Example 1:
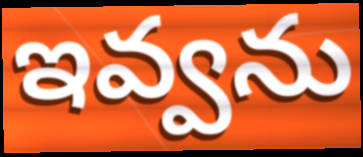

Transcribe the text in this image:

ఇవ్వను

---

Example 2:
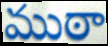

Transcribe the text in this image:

ముఠా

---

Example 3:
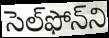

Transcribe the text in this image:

సెల్‌ఫోన్‌ని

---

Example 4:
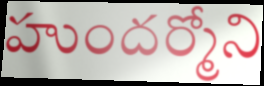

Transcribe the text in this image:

హుందర్మోని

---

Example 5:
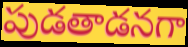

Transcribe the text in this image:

పుడతాడనగా